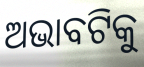
ଅଭାବଟିକୁ